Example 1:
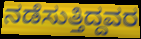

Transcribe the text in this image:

ನಡೆಸುತ್ತಿದ್ದವರ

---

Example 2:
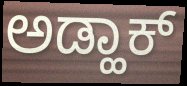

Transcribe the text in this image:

ಅಡ್ಹಾಕ್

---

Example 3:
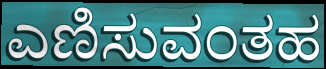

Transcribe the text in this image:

ಎಣಿಸುವಂತಹ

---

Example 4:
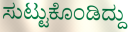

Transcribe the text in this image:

ಸುಟ್ಟುಕೊಂಡಿದ್ದು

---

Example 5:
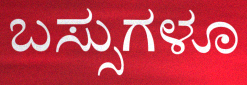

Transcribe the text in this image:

ಬಸ್ಸುಗಳೂ